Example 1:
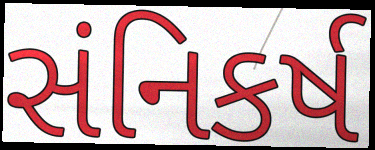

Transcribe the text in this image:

સંનિકર્ષ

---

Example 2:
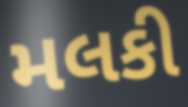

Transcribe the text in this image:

મલકી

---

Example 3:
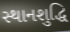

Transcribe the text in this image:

સ્થાનશુદ્ધિ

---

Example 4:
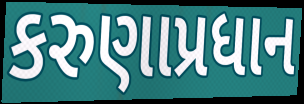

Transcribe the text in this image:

કરુણાપ્રધાન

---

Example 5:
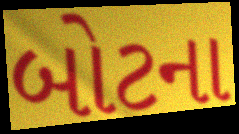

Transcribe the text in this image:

બોટના